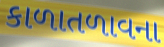
કાળાતળાવના